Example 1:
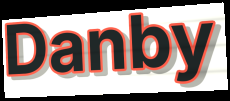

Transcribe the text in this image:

Danby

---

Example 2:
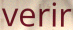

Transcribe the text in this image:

verir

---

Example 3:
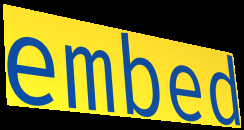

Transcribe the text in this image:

embed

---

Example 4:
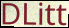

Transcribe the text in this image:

DLitt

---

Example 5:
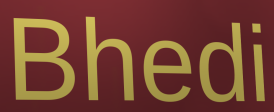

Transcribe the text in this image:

Bhedi